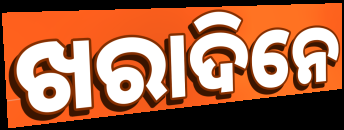
ଖରାଦିନେ